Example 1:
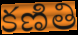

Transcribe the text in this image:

కణితి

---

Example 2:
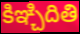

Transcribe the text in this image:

కిఞ్చిదితి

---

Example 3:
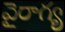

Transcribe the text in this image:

వైరాగ్య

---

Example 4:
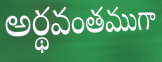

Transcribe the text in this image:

అర్థవంతముగా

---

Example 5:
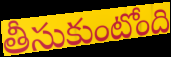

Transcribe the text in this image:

తీసుకుంటోంది